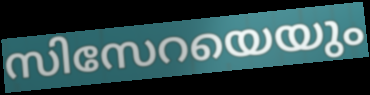
സിസേറയെയും